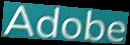
Adobe